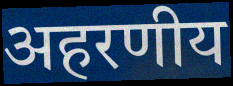
अहरणीय